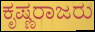
ಕೃಷ್ಣರಾಜರು